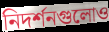
নিদর্শনগুলোও